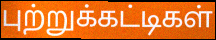
புற்றுக்கட்டிகள்